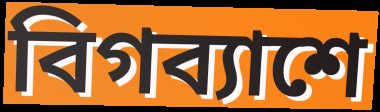
বিগব্যাশে